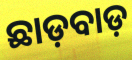
ଛାଡ଼ବାଡ଼